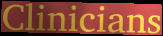
Clinicians